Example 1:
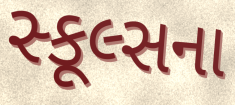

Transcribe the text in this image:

સ્કૂલ્સના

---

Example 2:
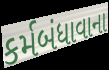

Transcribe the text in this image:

કર્મબંધાવાના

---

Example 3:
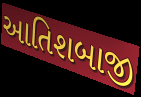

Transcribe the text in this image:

આતિશબાજી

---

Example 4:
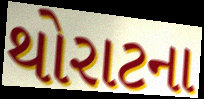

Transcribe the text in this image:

થોરાટના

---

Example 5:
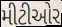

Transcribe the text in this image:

મીટીઓર